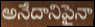
అనేదానిపైనా